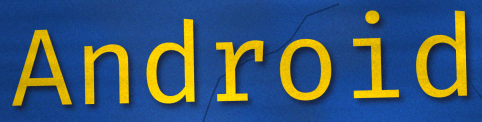
Android